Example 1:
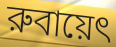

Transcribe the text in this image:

রুবায়েৎ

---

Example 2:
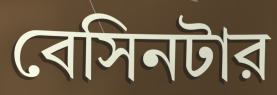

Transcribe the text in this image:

বেসিনটার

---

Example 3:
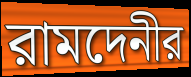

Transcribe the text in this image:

রামদেনীর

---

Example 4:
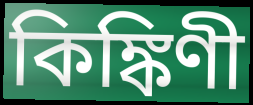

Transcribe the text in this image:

কিঙ্কিণী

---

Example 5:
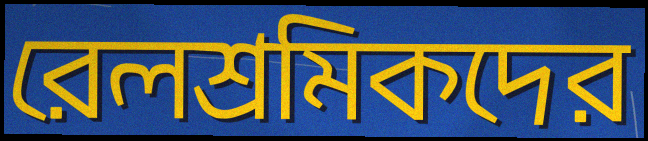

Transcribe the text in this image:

রেলশ্রমিকদের